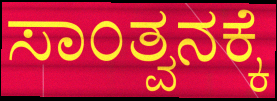
ಸಾಂತ್ವನಕ್ಕೆ